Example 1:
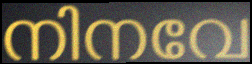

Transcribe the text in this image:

നിനവേ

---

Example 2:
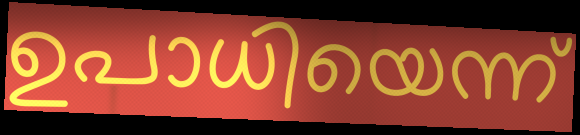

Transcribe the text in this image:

ഉപാധിയെന്ന്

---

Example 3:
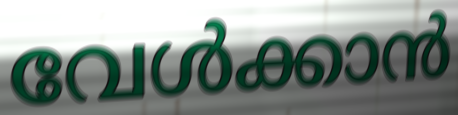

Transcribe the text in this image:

വേൾക്കാൻ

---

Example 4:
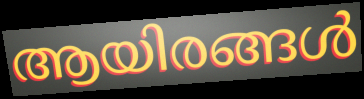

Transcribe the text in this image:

ആയിരങ്ങൾ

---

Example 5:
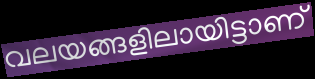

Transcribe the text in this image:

വലയങ്ങളിലായിട്ടാണ്